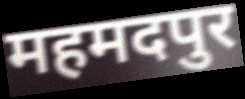
महमदपुर